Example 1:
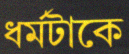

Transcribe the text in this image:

ধর্মটাকে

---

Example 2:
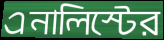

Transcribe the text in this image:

এনালিস্টের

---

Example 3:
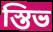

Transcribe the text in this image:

স্তিভ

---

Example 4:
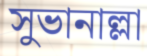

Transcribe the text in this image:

সুভানাল্লা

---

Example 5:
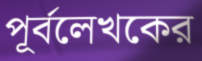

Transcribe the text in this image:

পূর্বলেখকের